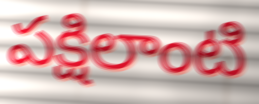
పక్షిలాంటి